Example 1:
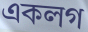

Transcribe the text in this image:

একলগ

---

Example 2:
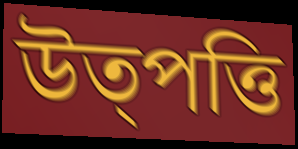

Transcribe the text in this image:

উত্পত্তি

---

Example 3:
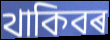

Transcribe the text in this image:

থাকিবৰ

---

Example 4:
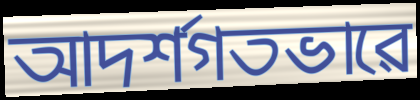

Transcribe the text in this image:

আদৰ্শগতভাৱে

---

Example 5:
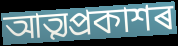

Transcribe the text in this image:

আত্মপ্ৰকাশৰ